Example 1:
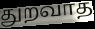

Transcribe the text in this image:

துறவாத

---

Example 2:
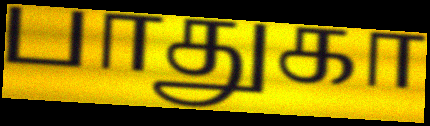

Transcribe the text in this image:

பாதுகா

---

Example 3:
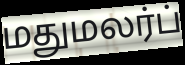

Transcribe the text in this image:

மதுமலர்ப்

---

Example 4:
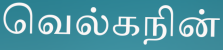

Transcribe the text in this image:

வெல்கநின்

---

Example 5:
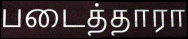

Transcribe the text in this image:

படைத்தாரா